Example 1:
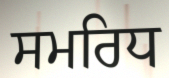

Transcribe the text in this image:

ਸਮਰਿਧ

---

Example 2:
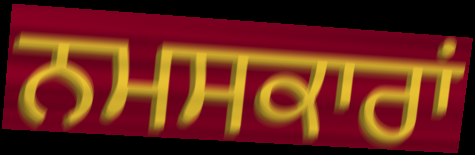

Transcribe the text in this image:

ਨਮਸਕਾਰਾਂ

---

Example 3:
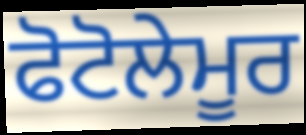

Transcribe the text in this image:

ਫੋਟੋਲੇਮੂਰ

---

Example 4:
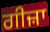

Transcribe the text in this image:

ਗੀਜ਼ਾ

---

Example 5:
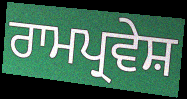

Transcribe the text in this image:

ਰਾਮਪ੍ਰਵੇਸ਼